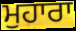
ਮੁਹਾਰਾ